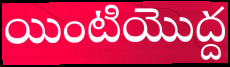
యింటియొద్ద